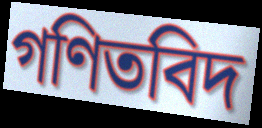
গণিতবিদ